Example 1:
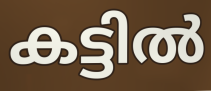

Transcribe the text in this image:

കട്ടിൽ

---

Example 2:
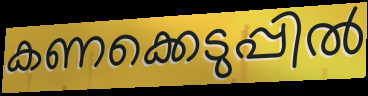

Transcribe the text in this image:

കണക്കെടുപ്പിൽ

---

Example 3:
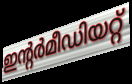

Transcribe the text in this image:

ഇന്റർമീഡിയറ്റ്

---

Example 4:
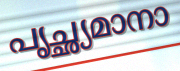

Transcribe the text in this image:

പൃച്ഛ്യമാനാ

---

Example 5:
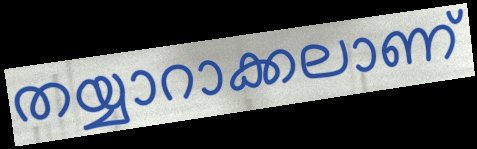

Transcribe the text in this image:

തയ്യാറാക്കലാണ്